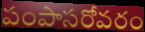
పంపాసరోవరం